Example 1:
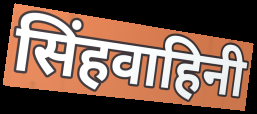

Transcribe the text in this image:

सिंहवाहिनी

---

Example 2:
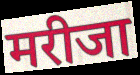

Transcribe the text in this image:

मरीजा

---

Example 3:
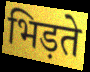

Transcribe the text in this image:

भिड़ते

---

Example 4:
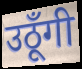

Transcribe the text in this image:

उठूँगी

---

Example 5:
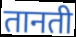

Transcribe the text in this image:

तानती